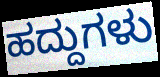
ಹದ್ದುಗಳು